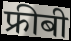
फ्रीबी